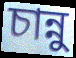
চান্নু